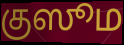
குஸூம